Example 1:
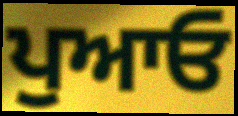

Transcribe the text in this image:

ਪੁਆਓ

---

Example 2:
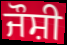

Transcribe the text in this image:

ਜੌਸ਼ੀ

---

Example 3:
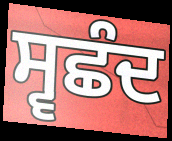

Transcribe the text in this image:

ਸ੍ਵਛੰਦ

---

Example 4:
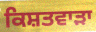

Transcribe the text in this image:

ਕਿਸ਼ਤਵਾੜਾ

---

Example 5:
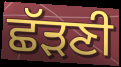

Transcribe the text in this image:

ਛੱੜਣੀ